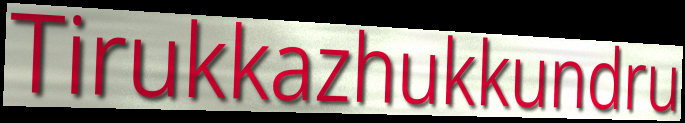
Tirukkazhukkundru